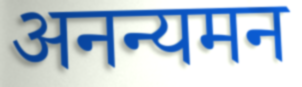
अनन्यमन